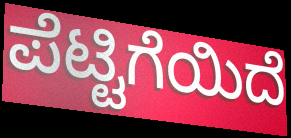
ಪೆಟ್ಟಿಗೆಯಿದೆ